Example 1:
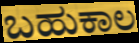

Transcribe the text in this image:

ಬಹುಕಾಲ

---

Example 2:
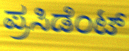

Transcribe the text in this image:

ಪ್ರಸಿಡೆಂಟ್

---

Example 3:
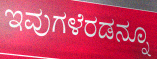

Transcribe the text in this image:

ಇವುಗಳೆರಡನ್ನೂ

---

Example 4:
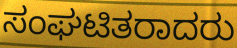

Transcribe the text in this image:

ಸಂಘಟಿತರಾದರು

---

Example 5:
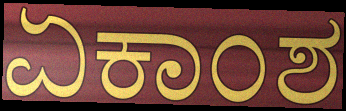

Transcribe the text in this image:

ಏಕಾಂಶ